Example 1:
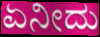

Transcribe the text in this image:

ಏನೀದು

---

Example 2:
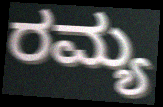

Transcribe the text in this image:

ರಮ್ಯ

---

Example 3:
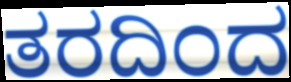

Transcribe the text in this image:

ತರದಿಂದ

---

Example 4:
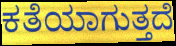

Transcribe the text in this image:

ಕತೆಯಾಗುತ್ತದೆ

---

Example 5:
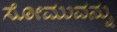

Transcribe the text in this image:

ಸೋಮುವನ್ನು